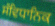
ਸੰਵਿਧਾਨਿਕ